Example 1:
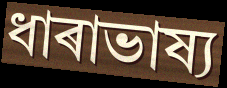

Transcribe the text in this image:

ধাৰাভাষ্য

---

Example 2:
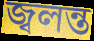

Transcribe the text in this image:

জ্বলন্ত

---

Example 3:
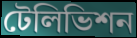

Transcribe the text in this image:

টেলিভিশন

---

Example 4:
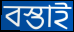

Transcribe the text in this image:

বস্তাই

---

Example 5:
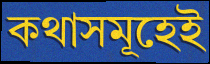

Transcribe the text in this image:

কথাসমূহেই